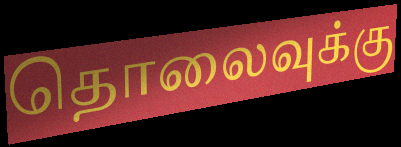
தொலைவுக்கு